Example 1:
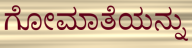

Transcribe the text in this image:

ಗೋಮಾತೆಯನ್ನು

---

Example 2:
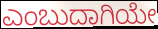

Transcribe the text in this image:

ಎಂಬುದಾಗಿಯೇ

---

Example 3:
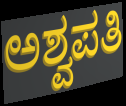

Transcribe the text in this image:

ಅಶ್ವಪತಿ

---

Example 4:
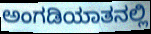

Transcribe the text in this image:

ಅಂಗಡಿಯಾತನಲ್ಲಿ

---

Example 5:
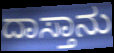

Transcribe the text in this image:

ದಾಸ್ತಾನು